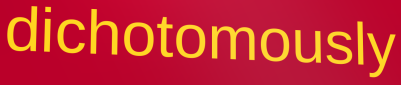
dichotomously